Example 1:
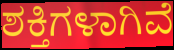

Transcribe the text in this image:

ಶಕ್ತಿಗಳಾಗಿವೆ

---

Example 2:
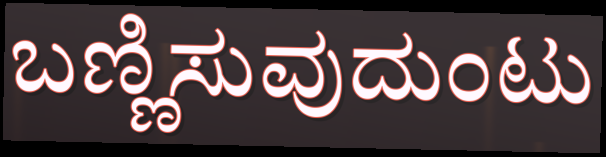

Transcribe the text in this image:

ಬಣ್ಣಿಸುವುದುಂಟು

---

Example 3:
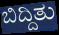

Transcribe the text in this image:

ಬಿದ್ದಿತು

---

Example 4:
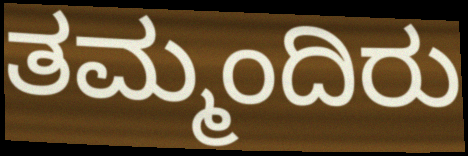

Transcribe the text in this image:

ತಮ್ಮಂದಿರು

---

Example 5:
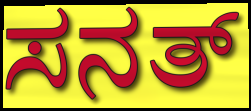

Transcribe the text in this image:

ಸನತ್